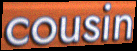
cousin